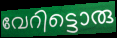
വേറിട്ടൊരു